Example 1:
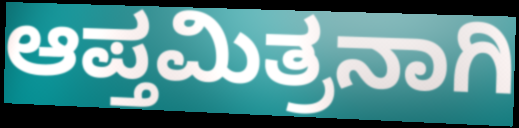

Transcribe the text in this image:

ಆಪ್ತಮಿತ್ರನಾಗಿ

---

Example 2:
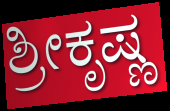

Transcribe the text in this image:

ಶ್ರೀಕೃಷ್ಣ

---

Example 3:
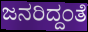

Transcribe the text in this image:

ಜನರಿದ್ದಂತೆ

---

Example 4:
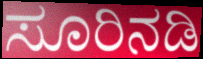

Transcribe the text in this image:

ಸೂರಿನಡಿ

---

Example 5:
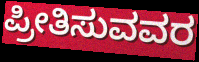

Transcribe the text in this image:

ಪ್ರೀತಿಸುವವರ